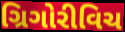
ગ્રિગોરીવિચ